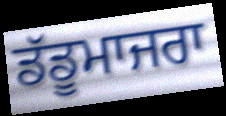
ਡੱਡੂਮਾਜਰਾ